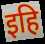
इहि